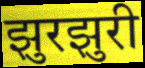
झुरझुरी